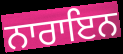
ਨਾਰਾਇਨ